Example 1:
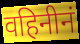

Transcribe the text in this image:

वहिनीनं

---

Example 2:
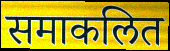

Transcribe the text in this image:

समाकलित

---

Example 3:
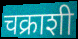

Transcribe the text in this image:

चक्राशी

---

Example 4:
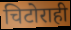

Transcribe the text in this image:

चिटोराही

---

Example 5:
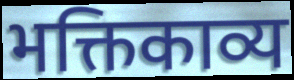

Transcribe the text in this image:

भक्तिकाव्य